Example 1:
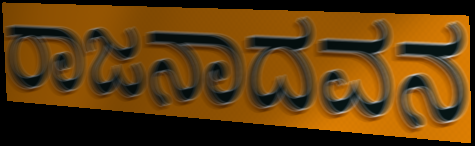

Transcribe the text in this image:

ರಾಜನಾದವನ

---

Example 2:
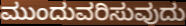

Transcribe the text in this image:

ಮುಂದುವರಿಸುವುದು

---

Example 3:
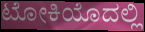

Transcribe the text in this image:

ಟೋಕಿಯೊದಲ್ಲಿ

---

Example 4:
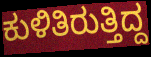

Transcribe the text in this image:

ಕುಳಿತಿರುತ್ತಿದ್ದ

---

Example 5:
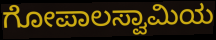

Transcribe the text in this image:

ಗೋಪಾಲಸ್ವಾಮಿಯ